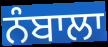
ਨੰਬਾਲਾ